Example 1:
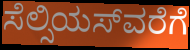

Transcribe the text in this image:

ಸೆಲ್ಸಿಯಸ್‍ವರೆಗೆ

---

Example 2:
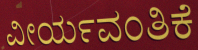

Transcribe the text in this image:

ವೀರ್ಯವಂತಿಕೆ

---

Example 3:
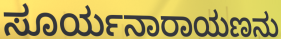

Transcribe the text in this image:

ಸೂರ್ಯನಾರಾಯಣನು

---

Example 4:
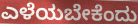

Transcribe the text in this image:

ಎಳೆಯಬೇಕೆಂದು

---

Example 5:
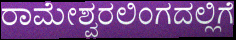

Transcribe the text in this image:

ರಾಮೇಶ್ವರಲಿಂಗದಲ್ಲಿಗೆ